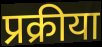
प्रक्रीया